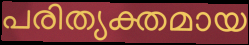
പരിത്യക്തമായ